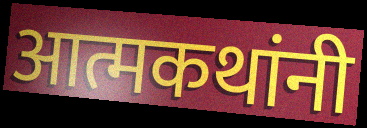
आत्मकथांनी